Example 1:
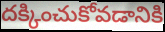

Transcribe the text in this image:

దక్కించుకోవడానికి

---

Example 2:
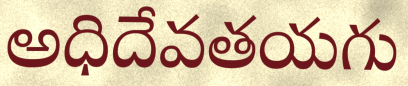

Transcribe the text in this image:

అధిదేవతయగు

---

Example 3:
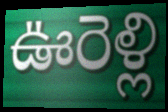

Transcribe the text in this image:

ఊరెళ్లి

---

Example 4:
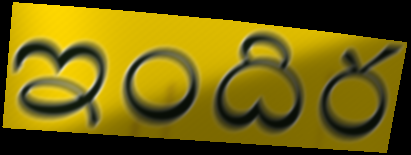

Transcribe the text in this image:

ఇందిర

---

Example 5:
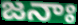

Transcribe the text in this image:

జనాః